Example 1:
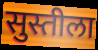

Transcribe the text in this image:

सुस्तीला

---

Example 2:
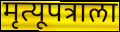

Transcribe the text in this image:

मृत्यूपत्राला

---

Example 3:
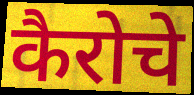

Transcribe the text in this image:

कैरोचे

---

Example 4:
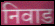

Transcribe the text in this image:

निवाड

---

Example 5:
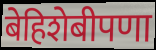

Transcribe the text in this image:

बेहिशेबीपणा